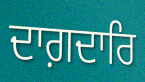
ਦਾਗ਼ਦਾਰਿ